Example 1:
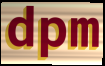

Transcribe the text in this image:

dpm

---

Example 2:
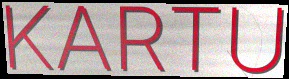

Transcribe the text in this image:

KARTU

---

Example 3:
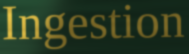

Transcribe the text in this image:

Ingestion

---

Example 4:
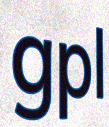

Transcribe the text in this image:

gpl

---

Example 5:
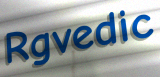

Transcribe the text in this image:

Rgvedic